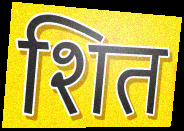
शित